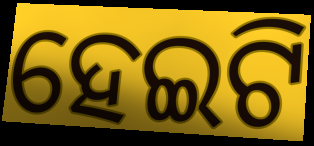
ହେଇଟି